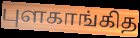
புளகாங்கித